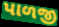
પાળજી